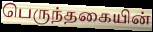
பெருந்தகையின்